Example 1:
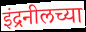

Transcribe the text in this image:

इंद्रनीलच्या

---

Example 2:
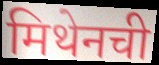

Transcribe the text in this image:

मिथेनची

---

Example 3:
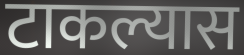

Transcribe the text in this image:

टाकल्यास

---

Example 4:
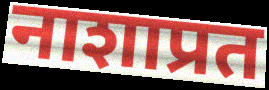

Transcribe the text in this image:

नाशाप्रत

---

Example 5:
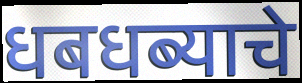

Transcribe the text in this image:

धबधब्याचे